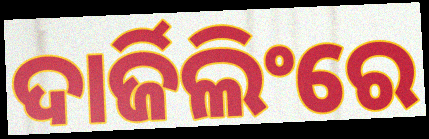
ଦାର୍ଜିଲିଂରେ